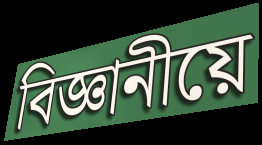
বিজ্ঞানীয়ে